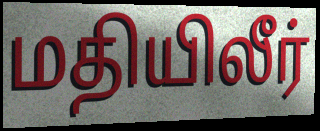
மதியிலீர்